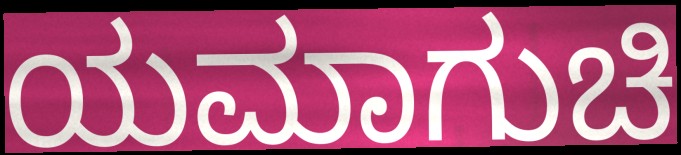
ಯಮಾಗುಚಿ